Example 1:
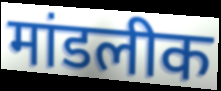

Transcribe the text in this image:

मांडलीक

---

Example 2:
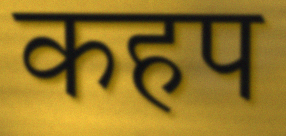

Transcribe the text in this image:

कहप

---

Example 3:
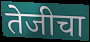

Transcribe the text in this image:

तेजीचा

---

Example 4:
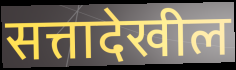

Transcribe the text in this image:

सत्तादेखील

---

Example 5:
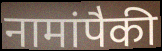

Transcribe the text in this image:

नामांपैकी